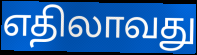
எதிலாவது